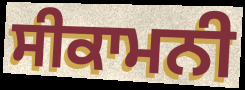
ਸੀਕਾਮਨੀ